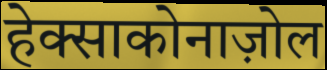
हेक्साकोनाज़ोल